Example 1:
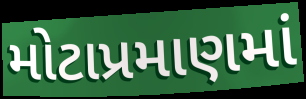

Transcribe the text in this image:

મોટાપ્રમાણમાં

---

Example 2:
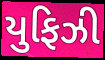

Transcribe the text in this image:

યુફિઝી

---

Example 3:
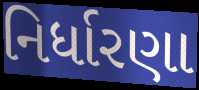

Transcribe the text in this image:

નિર્ધારણા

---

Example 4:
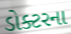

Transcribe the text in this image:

ડોક્ટરના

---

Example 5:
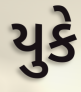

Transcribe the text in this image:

યુકે